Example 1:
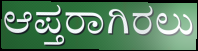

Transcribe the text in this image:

ಆಪ್ತರಾಗಿರಲು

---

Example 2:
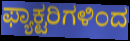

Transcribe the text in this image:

ಫ್ಯಾಕ್ಟರಿಗಳಿಂದ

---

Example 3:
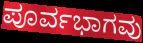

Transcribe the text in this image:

ಪೂರ್ವಭಾಗವು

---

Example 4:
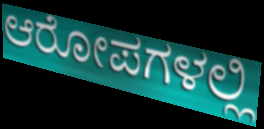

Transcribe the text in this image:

ಆರೋಪಗಳಲ್ಲಿ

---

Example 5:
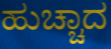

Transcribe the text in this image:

ಹುಚ್ಚಾದ